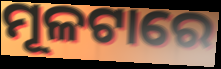
ମୂଳଟାରେ